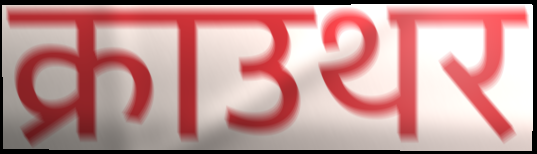
क्राउथर